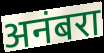
अनंबरा